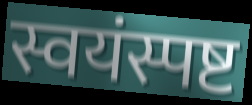
स्वयंस्पष्ट